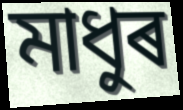
মাধুৰ